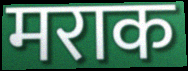
मराक